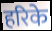
हरिके